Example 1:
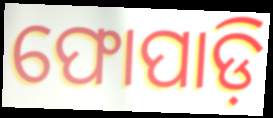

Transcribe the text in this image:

ଫୋପାଡ଼ି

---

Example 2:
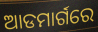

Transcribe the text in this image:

ଆଡମାର୍ଗରେ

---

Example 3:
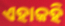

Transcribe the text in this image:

ଏହାକହି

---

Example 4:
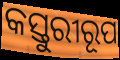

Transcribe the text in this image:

କସ୍ତୁରୀରୂପ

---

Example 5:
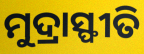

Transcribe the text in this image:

ମୁଦ୍ରାସ୍ଫୀତି